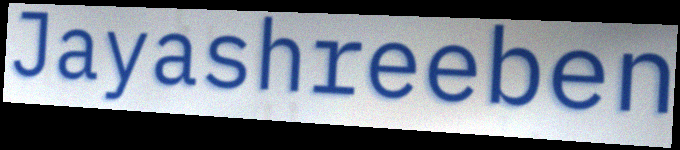
Jayashreeben